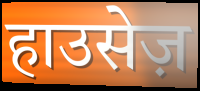
हाउसेज़